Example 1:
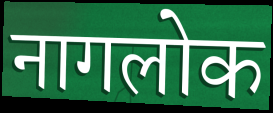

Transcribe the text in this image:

नागलोक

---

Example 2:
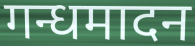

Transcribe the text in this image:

गन्धमादन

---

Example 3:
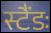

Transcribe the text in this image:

स्टैंडः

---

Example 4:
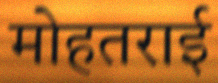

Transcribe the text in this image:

मोहतराई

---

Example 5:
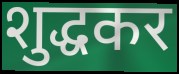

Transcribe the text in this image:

शुद्धकर